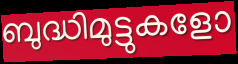
ബുദ്ധിമുട്ടുകളോ